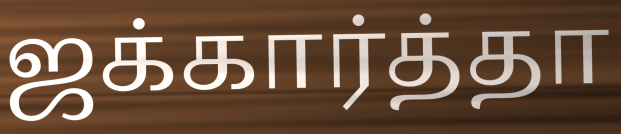
ஜக்கார்த்தா